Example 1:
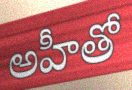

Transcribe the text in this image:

అహీతో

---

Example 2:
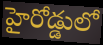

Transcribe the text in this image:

హైరోడ్డులో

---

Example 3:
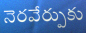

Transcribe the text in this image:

నెరవేర్పుకు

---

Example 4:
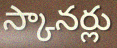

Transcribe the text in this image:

స్కానర్లు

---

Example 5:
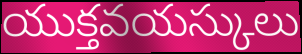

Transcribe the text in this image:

యుక్తవయస్కులు